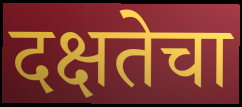
दक्षतेचा